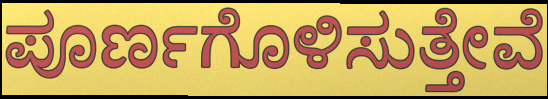
ಪೂರ್ಣಗೊಳಿಸುತ್ತೇವೆ